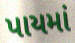
પાયમાં